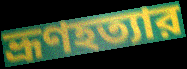
ভ্রূণহত্যার